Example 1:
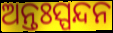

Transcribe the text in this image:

ଅନ୍ତଃସ୍ପନ୍ଦନ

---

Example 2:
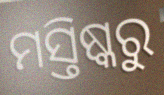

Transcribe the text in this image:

ମସ୍ତିଷ୍କରୁ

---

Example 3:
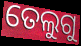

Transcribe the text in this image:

ତେଲୁଗୁ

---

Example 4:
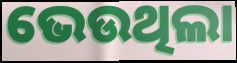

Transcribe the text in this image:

ଭେଉଥିଲା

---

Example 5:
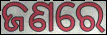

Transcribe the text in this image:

ଜଣରେ